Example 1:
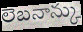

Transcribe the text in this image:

లెబనాన్కు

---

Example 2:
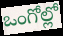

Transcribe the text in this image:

ఒంగోల్లో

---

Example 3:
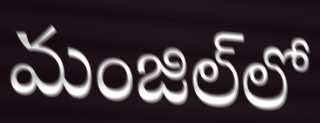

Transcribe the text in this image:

మంజిల్‌లో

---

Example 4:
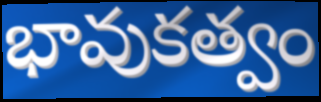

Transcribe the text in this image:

భావుకత్వం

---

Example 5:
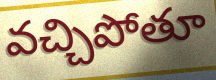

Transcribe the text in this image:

వచ్చిపోతూ